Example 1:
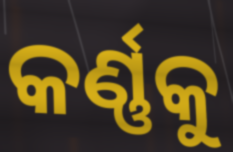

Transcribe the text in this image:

କର୍ଣ୍ଣକୁ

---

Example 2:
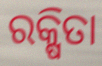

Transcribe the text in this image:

ରକ୍ଷିତା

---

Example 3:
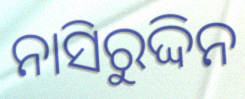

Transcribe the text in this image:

ନାସିରୁଦ୍ଦିନ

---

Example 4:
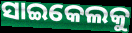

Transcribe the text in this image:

ସାଇକେଲକୁ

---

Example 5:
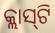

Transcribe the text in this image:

କ୍ଲାସ୍‌ଟି